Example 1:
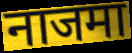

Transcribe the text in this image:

नाजमा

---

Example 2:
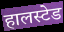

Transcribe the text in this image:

हालस्टेड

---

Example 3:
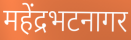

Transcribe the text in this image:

महेंद्रभटनागर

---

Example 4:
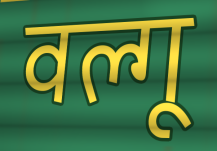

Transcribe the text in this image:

वल्गू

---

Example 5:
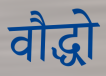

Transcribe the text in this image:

वौद्धो